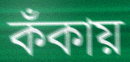
কঁকায়